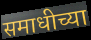
समाधीच्या